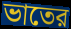
ভাতের